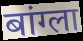
बांग्‍ला